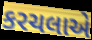
કરચલાએ